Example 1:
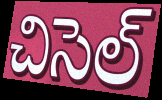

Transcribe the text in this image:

చిసెల్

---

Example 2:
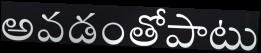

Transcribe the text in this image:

అవడంతోపాటు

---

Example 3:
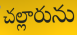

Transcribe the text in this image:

చల్లారును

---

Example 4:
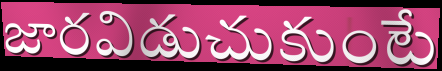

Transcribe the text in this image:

జారవిడుచుకుంటే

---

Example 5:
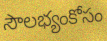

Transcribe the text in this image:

సౌలభ్యంకోసం